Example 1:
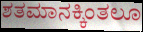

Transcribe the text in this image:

ಶತಮಾನಕ್ಕಿಂತಲೂ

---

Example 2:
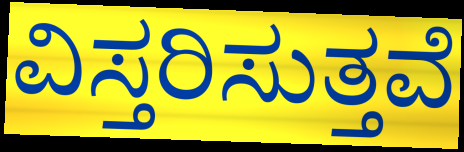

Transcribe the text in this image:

ವಿಸ್ತರಿಸುತ್ತವೆ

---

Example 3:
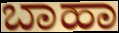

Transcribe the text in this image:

ಬಾಹಾ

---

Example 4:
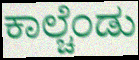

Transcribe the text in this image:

ಕಾಲ್ಚೆಂಡು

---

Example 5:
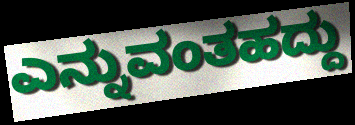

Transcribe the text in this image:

ಎನ್ನುವಂತಹದ್ದು